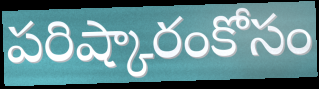
పరిష్కారంకోసం